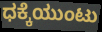
ಧಕ್ಕೆಯುಂಟು